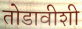
तोडावीशी